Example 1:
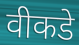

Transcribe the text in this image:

वीकडे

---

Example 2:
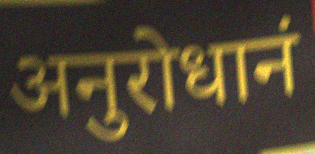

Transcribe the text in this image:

अनुरोधानं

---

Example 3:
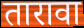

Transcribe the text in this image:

तारावा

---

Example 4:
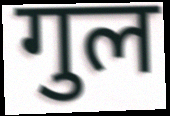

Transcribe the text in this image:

गुल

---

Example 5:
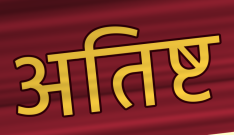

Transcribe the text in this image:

अतिष्ट